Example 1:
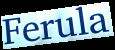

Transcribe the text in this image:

Ferula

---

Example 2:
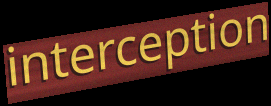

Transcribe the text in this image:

interception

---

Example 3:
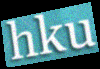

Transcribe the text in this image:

hku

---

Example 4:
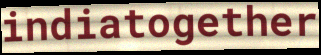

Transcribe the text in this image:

indiatogether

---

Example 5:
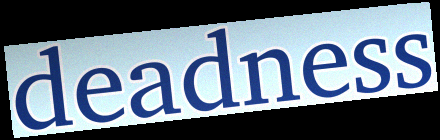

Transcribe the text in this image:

deadness